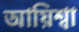
আয়িশ্বা